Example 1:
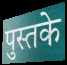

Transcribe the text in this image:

पुस्तके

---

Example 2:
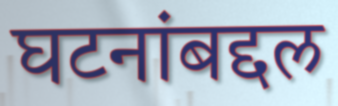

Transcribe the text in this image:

घटनांबद्दल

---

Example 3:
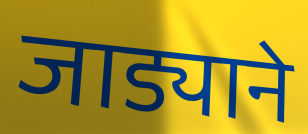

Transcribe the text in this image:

जाड्याने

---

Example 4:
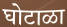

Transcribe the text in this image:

घोटाळा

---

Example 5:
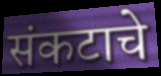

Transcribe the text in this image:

संकटाचे